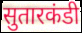
सुतारकंडी